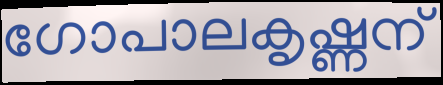
ഗോപാലകൃഷ്ണന്